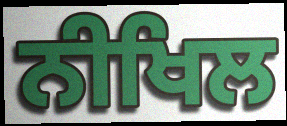
ਨੀਖਿਲ